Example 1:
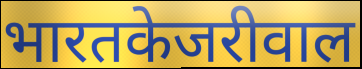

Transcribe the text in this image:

भारतकेजरीवाल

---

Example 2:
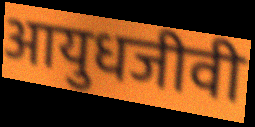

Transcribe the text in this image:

आयुधजीवी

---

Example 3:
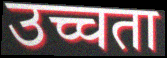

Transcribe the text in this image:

उच्चता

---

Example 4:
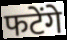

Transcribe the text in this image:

फटेंगे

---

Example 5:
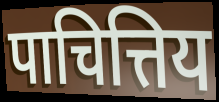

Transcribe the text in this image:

पाचित्तिय